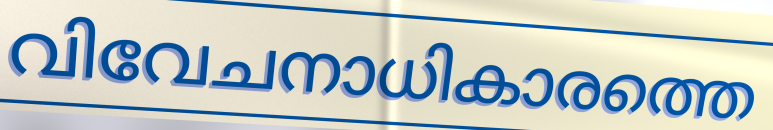
വിവേചനാധികാരത്തെ